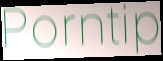
Porntip